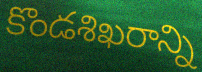
కొండశిఖరాన్ని